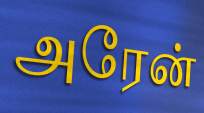
அரேன்